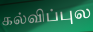
கல்விப்புல